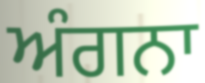
ਅੰਗਨਾ